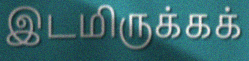
இடமிருக்கக்